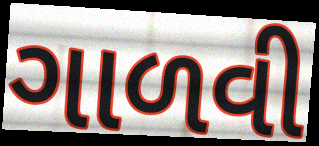
ગાળવી